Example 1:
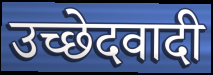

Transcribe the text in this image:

उच्छेदवादी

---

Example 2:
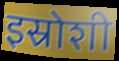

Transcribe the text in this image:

इस्रोशी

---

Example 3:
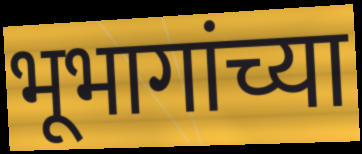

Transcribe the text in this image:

भूभागांच्या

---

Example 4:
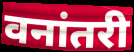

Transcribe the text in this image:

वनांतरी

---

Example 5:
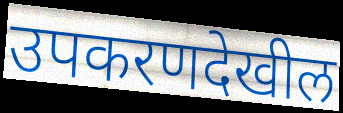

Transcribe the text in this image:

उपकरणदेखील